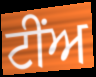
ਟੀਂਅ